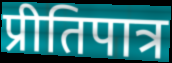
प्रीतिपात्र